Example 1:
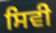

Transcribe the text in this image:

ਸਿਵੀ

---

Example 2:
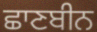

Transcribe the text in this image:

ਛਾਣਬੀਨ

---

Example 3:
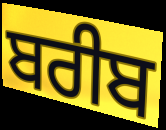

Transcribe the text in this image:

ਬਰੀਬ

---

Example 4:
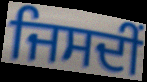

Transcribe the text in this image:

ਜਿਸਦੀਂ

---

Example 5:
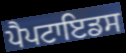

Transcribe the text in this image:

ਪੈਪਟਾਇਡਸ